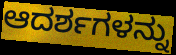
ಆದರ್ಶಗಳನ್ನು